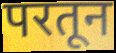
परतून